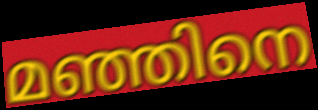
മഞ്ഞിനെ